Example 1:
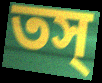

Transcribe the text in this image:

তস্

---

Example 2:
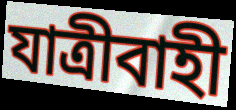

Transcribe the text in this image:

যাত্ৰীবাহী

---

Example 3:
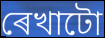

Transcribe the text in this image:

ৰেখাটো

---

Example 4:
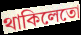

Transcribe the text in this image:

থাকিলেতো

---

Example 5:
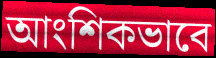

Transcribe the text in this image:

আংশিকভাবে